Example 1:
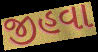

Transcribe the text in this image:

જીહવા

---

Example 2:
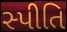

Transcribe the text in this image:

સ્પીતિ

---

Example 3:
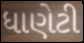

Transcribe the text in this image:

ધાણેટી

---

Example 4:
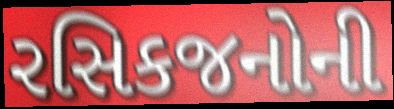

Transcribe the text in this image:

રસિકજનોની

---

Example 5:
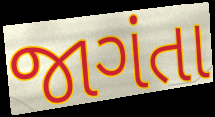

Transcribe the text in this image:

જાગંતા